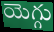
యెగ్గు